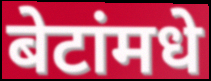
बेटांमधे